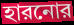
হারনোর